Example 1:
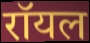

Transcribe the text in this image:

रॉयल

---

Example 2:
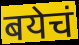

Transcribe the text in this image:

बयेचं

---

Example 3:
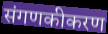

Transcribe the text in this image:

संगणकीकरण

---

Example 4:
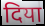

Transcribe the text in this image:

दिया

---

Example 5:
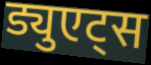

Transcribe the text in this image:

ड्युएट्स